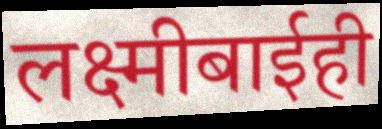
लक्ष्मीबाईही